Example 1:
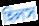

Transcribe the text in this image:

হিলস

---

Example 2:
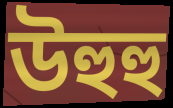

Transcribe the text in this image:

উহুহু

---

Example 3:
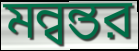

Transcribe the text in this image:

মন্বন্তর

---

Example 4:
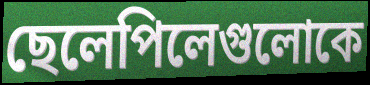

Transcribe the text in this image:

ছেলেপিলেগুলোকে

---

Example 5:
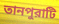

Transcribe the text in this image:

তানপুরাটি